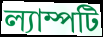
ল্যাম্পটি